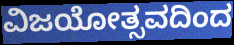
ವಿಜಯೋತ್ಸವದಿಂದ